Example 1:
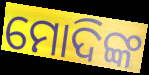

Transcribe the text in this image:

ମୋଦିଙ୍କ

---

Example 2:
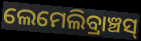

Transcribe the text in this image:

ଲେମେଲିବ୍ରାଞ୍ଚସ୍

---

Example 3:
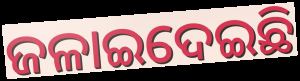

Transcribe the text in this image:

ଜଳାଇଦେଇଛି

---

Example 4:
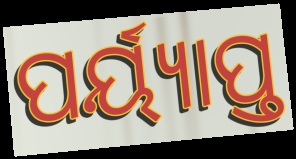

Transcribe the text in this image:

ପର୍ୟ୍ୟାପ୍ତ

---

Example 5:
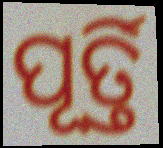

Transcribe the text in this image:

ପୂର୍ତ୍ତି